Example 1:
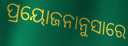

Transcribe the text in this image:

ପ୍ରୟୋଜନାନୁସାରେ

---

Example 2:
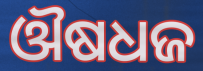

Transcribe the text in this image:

ଔଷଧଜ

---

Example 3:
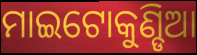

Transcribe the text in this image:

ମାଇଟୋକୁଣ୍ଡିଆ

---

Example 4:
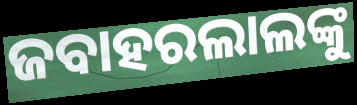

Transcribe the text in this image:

ଜବାହରଲାଲଙ୍କୁ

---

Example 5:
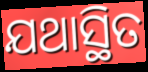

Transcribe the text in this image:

ଯଥାସ୍ଥିତ